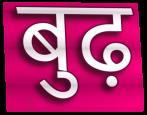
बुढ़